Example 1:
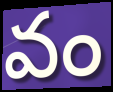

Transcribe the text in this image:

వం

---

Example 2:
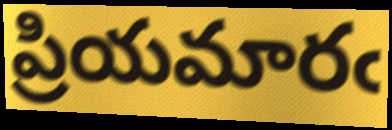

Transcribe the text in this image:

ప్రియమారఁ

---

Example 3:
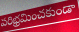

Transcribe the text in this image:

పరిభ్రమించకుండా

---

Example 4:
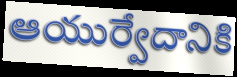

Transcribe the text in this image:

ఆయుర్వేదానికి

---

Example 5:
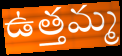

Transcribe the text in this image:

ఉత్తమ్మ